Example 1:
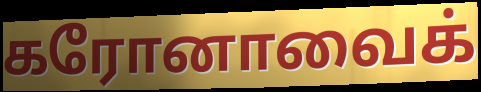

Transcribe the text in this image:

கரோனாவைக்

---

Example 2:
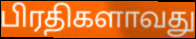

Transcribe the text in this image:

பிரதிகளாவது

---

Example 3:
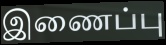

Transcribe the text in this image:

இணைப்பு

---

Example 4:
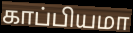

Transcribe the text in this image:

காப்பியமா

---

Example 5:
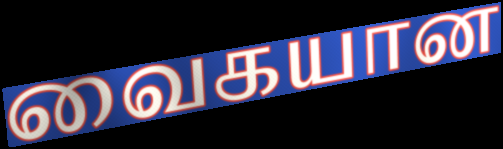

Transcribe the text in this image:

வைகயான